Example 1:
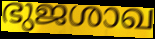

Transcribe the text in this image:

ഭുജശാഖ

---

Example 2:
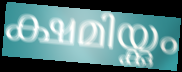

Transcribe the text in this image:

ക്ഷമിയ്ക്കും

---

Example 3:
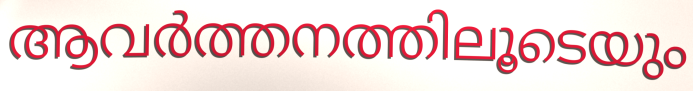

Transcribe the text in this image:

ആവർത്തനത്തിലൂടെയും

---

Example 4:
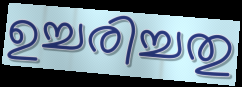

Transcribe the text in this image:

ഉച്ചരിച്ചതു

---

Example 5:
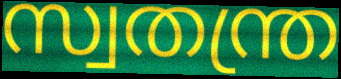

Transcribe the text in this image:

സ്വതന്ത്ര